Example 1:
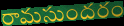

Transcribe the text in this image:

రామసుందరం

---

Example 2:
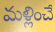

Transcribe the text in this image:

మళ్లించే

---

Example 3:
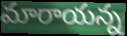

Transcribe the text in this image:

మారాయన్న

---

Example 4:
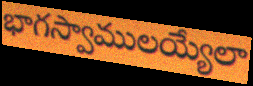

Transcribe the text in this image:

భాగస్వాములయ్యేలా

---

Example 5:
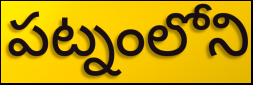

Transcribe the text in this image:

పట్నంలోని